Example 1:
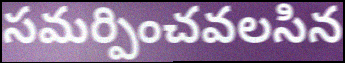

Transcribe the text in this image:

సమర్పించవలసిన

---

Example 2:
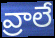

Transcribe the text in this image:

వ్రాలే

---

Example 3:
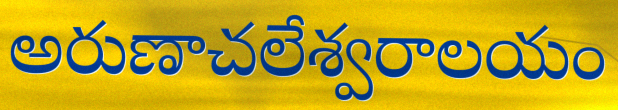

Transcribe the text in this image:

అరుణాచలేశ్వరాలయం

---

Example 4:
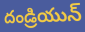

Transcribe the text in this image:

దండ్రియున్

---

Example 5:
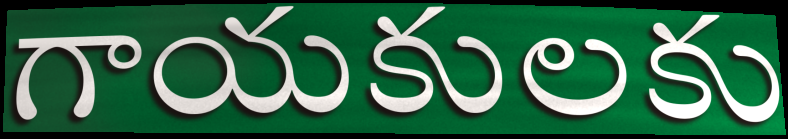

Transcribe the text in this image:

గాయకులకు